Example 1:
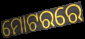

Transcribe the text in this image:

ମୋଟରରେ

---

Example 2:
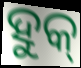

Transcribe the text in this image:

ହୁକ୍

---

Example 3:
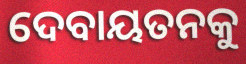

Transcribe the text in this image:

ଦେବାୟତନକୁ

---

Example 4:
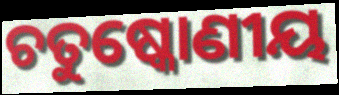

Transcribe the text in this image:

ଚତୁଷ୍କୋଣୀୟ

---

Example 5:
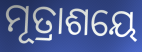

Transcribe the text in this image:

ମୂତ୍ରାଶୟେ